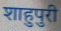
शाहुपुरी